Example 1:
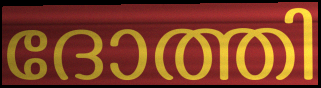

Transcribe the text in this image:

ദോത്തി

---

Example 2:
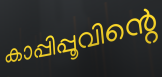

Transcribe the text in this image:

കാപ്പിപ്പൂവിന്റെ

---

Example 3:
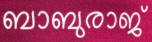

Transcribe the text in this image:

ബാബുരാജ്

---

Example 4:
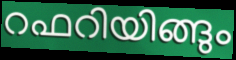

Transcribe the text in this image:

റഫറിയിങ്ങും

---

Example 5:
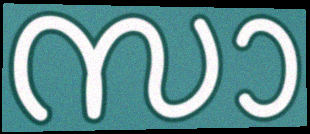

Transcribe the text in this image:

സാ